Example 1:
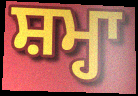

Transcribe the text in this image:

ਸ਼ਮ੍ਹਾ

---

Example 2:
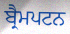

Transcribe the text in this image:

ਬ੍ਰੈਮਪਟਨ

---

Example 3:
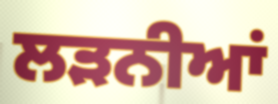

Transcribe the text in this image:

ਲੜਨੀਆਂ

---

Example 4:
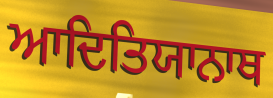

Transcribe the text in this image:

ਆਦਿਤਿਯਾਨਾਥ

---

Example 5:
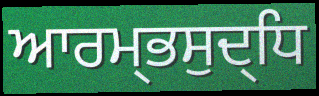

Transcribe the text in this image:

ਆਰਮ੍ਭਸੁਦ੍ਧਿ